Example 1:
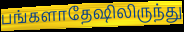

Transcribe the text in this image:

பங்களாதேஷிலிருந்து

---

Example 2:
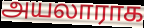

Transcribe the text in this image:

அயலாராக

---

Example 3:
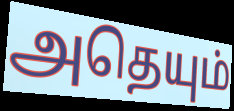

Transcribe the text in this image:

அதெயும்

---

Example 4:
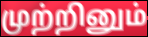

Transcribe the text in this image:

முற்றினும்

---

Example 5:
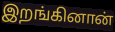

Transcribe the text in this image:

இறங்கினான்